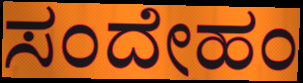
ಸಂದೇಹಂ